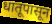
धातूपासून